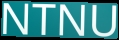
NTNU